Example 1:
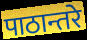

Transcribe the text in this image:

पाठान्तरे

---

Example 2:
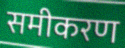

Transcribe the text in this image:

समीकरण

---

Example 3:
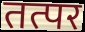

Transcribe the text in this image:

तत्‍पर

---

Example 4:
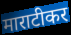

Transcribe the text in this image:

माराटीकर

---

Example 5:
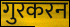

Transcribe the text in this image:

गुरकरन